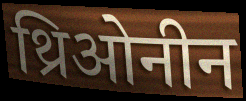
थ्रिओनीन